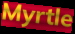
Myrtle